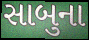
સાબુના